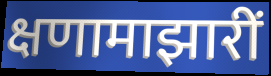
क्षणामाझारीं